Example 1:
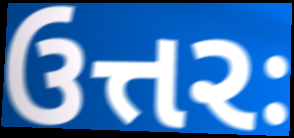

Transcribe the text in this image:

ઉત્તરઃ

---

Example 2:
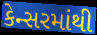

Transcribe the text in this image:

કેન્સરમાંથી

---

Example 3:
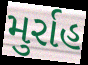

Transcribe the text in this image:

મુર્રાહ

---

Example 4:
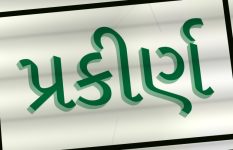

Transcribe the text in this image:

પ્રકીર્ણ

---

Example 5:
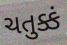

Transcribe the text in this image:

ચતુક્કં